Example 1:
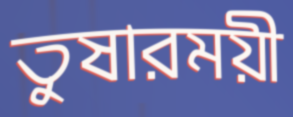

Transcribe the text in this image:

তুষারময়ী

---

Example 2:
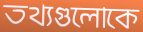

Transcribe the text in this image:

তথ্যগুলোকে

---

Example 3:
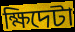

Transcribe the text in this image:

ক্ষিদেটা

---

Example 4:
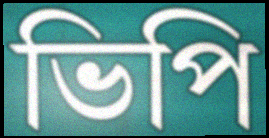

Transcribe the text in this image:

ভিপি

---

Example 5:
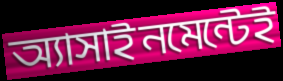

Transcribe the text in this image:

অ্যাসাইনমেন্টেই